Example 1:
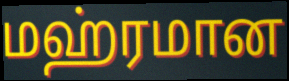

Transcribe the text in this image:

மஹ்ரமான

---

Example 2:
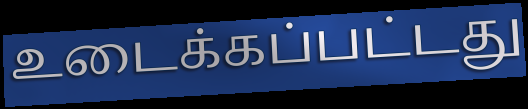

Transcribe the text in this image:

உடைக்கப்பட்டது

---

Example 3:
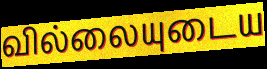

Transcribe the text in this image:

வில்லையுடைய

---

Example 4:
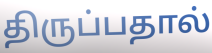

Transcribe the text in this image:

திருப்பதால்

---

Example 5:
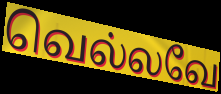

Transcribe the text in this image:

வெல்லவே